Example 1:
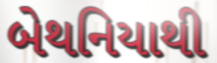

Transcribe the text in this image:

બેથનિયાથી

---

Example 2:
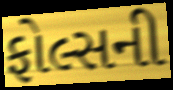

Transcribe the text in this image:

ફોલ્સની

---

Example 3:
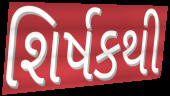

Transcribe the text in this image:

શિર્ષકથી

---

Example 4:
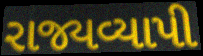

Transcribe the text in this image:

રાજ્યવ્યાપી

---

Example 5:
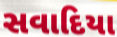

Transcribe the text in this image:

સવાદિયા